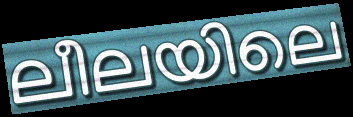
ലീലയിലെ